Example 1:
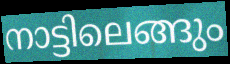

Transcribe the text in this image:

നാട്ടിലെങ്ങും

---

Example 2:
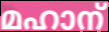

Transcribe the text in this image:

മഹാന്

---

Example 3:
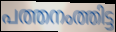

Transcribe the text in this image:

പത്തനംത്തിട്ട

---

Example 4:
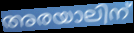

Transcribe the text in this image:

അരയാലിന്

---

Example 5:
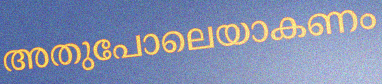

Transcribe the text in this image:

അതുപോലെയാകണം